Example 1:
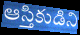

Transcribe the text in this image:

ఆస్తికుడిని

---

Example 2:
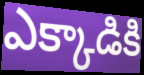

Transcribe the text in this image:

ఎక్కాడికి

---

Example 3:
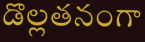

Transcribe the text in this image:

డొల్లతనంగా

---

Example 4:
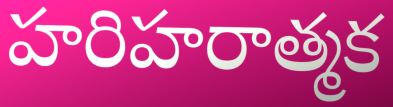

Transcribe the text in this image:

హరిహరాత్మక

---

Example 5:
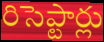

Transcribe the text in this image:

రిసెప్టార్లు